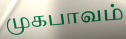
முகபாவம்